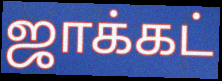
ஜாக்கட்